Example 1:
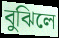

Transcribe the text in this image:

বুঝিলে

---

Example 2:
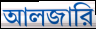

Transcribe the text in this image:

আলজারি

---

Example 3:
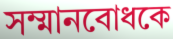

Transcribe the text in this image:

সম্মানবোধকে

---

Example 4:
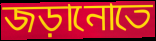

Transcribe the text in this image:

জড়ানোতে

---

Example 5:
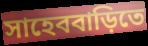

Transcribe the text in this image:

সাহেববাড়িতে